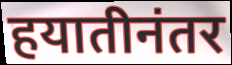
हयातीनंतर